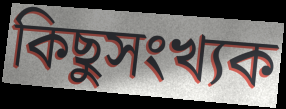
কিছুসংখ্যক